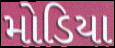
મોડિયા